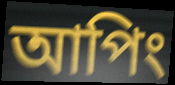
আপিং